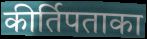
कीर्तिपताका